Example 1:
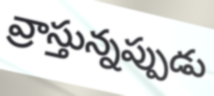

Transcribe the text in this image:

వ్రాస్తున్నప్పుడు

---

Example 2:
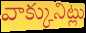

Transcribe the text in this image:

వాక్కునిట్లు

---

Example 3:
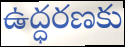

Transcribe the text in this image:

ఉద్ధరణకు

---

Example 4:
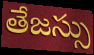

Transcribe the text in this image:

తేజస్సు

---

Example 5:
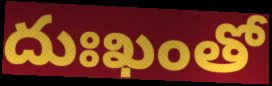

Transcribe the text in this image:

దుఃఖంతో